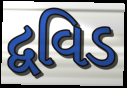
દ્વવિડ